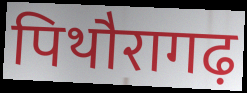
पिथौरागढ़